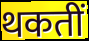
थकतीं